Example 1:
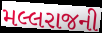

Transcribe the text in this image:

મલ્લરાજની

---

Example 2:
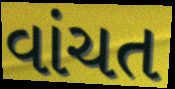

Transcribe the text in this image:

વાંચત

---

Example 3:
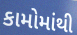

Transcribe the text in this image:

કામોમાંથી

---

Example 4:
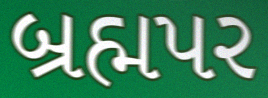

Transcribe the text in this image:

બ્રહ્મપર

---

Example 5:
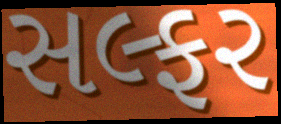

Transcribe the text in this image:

સલ્ફર